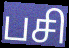
பசி